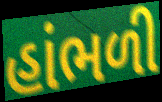
હાંભળી